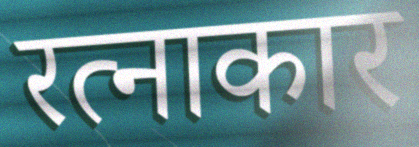
रत्नाकार